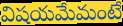
విషయమేమంటే